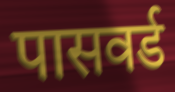
पासवर्ड